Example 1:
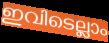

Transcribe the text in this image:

ഇവിടെല്ലാം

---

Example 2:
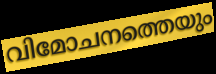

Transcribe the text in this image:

വിമോചനത്തെയും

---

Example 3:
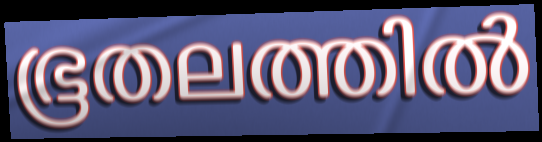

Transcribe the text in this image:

ഭൂതലത്തിൽ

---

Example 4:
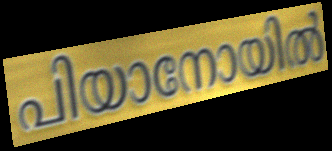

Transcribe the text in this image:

പിയാനോയിൽ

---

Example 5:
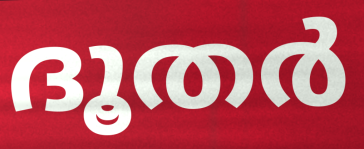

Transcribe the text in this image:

ദൂതർ